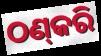
ଠଣ୍‌କରି